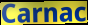
Carnac